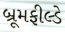
બ્રૂમફીલ્ડે